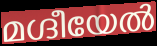
മഗ്ദീയേൽ